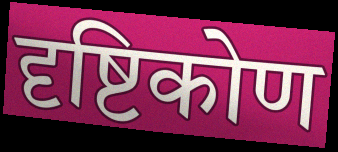
दृष्टिकोण